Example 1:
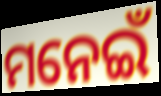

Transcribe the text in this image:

ମନେଇଁ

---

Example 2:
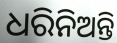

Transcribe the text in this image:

ଧରିନିଅନ୍ତି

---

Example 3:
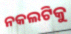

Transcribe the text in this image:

ନକଲଟିକୁ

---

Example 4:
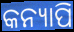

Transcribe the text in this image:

କନ୍ୟାପି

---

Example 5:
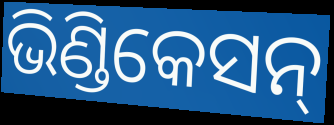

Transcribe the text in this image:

ଭିଣ୍ଡିକେସନ୍